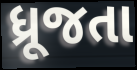
ધ્રૂજતા